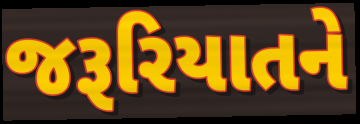
જરૂરિયાતને